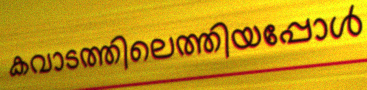
കവാടത്തിലെത്തിയപ്പോൾ